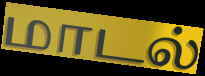
மாடல்